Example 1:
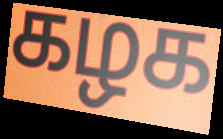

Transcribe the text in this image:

கழக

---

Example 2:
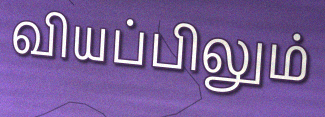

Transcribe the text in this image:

வியப்பிலும்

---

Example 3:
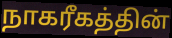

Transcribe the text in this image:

நாகரீகத்தின்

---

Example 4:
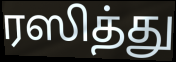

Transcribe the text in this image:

ரஸித்து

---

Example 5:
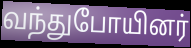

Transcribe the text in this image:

வந்துபோயினர்